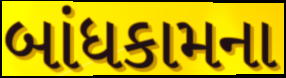
બાંધકામના